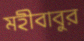
মহীবাবুর